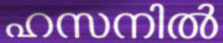
ഹസനിൽ